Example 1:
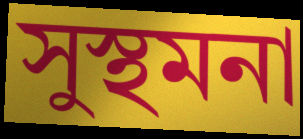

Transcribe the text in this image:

সুস্থমনা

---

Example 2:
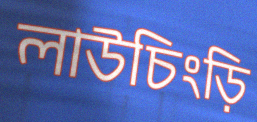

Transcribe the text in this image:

লাউচিংড়ি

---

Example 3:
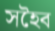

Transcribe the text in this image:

সহৈব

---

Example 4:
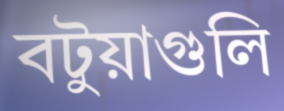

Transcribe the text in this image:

বটুয়াগুলি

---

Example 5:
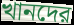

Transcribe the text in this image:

খানদের